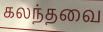
கலந்தவை